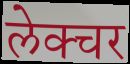
लेक्चर